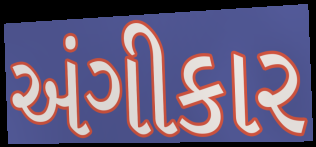
અંગીકાર